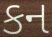
કન